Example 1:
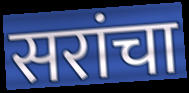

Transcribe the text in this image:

सरांचा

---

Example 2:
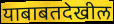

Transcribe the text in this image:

याबाबतदेखील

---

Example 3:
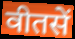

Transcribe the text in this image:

वीतसें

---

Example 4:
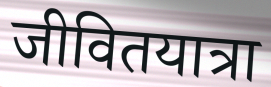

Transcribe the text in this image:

जीवितयात्रा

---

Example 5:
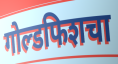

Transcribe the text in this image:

गोल्डफिशचा